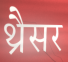
थ्रैसर